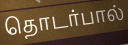
தொடர்பால்